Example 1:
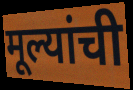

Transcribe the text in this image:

मूल्यांची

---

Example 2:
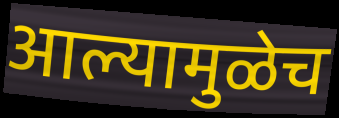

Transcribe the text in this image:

आल्यामुळेच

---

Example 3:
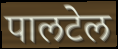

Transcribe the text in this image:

पालटेल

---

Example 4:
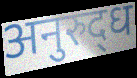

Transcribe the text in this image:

अनुरुद्ध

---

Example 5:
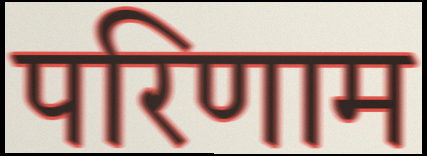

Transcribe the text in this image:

परिणाम